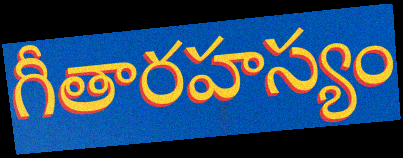
గీతారహస్యం